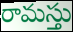
రామస్తు